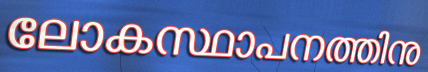
ലോകസ്ഥാപനത്തിനു